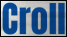
Croll